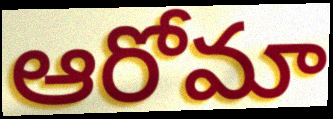
ఆరోమా